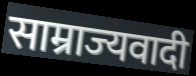
साम्राज्‍यवादी